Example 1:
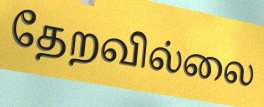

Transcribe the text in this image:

தேறவில்லை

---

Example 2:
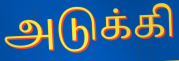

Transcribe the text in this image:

அடுக்கி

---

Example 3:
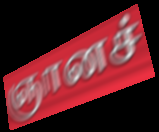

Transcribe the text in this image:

ஞானச்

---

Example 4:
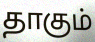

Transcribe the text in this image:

தாகும்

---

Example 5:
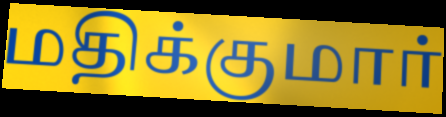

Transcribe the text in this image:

மதிக்குமார்